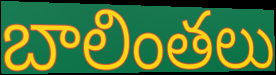
బాలింతలు